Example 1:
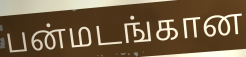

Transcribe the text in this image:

பன்மடங்கான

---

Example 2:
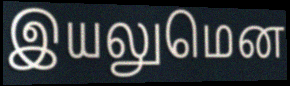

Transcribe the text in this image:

இயலுமென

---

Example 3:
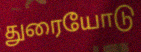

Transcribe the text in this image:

துரையோடு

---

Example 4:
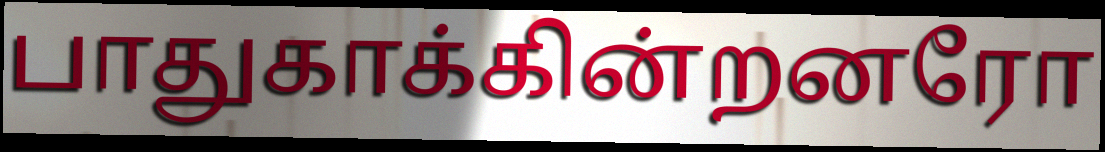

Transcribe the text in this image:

பாதுகாக்கின்றனரோ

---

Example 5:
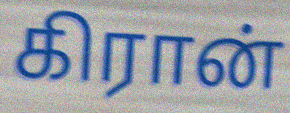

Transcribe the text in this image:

கிரான்